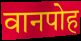
वानपोह